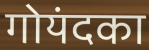
गोयंदका